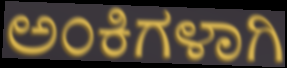
ಅಂಕಿಗಳಾಗಿ